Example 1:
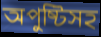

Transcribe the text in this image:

অপুষ্টিসহ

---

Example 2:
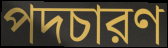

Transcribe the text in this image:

পদচারণ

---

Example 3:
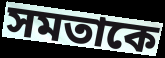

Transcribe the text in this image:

সমতাকে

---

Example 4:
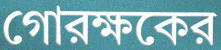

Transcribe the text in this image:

গোরক্ষকের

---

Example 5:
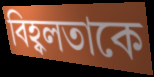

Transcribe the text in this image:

বিহ্বলতাকে